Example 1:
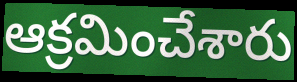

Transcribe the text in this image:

ఆక్రమించేశారు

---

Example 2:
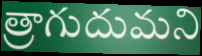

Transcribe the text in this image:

త్రాగుదుమని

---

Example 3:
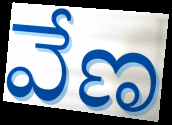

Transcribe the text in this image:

వేణ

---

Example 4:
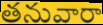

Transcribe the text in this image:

తనువారా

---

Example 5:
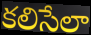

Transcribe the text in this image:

కలిసేలా